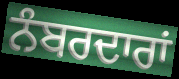
ਨੰਬਰਦਾਰਾਂ